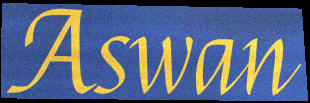
Aswan